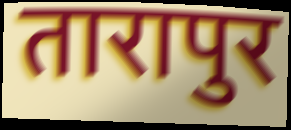
तारापुर